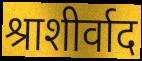
श्राशीर्वाद